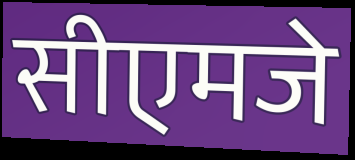
सीएमजे